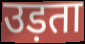
उड़ता